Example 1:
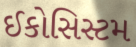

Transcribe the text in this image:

ઈકોસિસ્ટમ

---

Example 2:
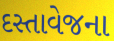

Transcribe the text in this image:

દસ્તાવેજના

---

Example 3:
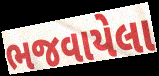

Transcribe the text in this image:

ભજવાયેલા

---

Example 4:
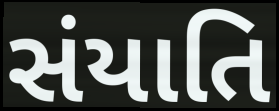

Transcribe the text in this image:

સંયાતિ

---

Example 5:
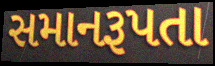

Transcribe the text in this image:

સમાનરૂપતા